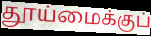
தூய்மைக்குப்